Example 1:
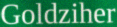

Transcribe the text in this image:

Goldziher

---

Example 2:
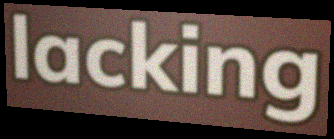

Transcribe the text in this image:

lacking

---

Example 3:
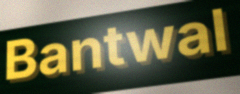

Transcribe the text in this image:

Bantwal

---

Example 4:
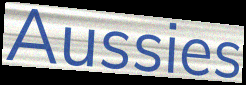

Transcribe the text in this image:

Aussies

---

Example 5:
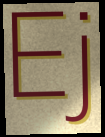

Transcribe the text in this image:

Ej